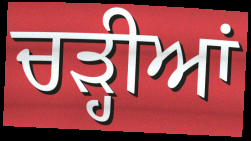
ਚੜ੍ਹੀਆਂ